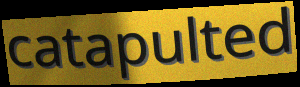
catapulted